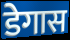
डेगास